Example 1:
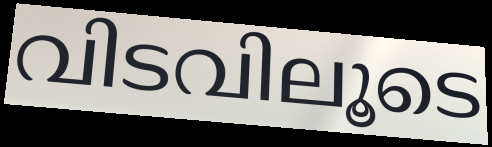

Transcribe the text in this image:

വിടവിലൂടെ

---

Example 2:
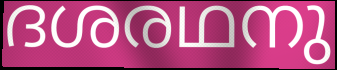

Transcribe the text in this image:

ദശരഥനു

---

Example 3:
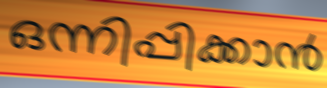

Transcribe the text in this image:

ഒന്നിപ്പിക്കാൻ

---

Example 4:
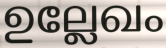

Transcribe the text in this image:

ഉല്ലേഖം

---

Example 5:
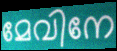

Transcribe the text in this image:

മേവിനേ